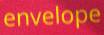
envelope